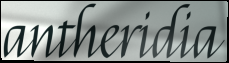
antheridia